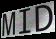
MID